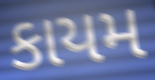
કાયમ